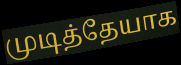
முடித்தேயாக